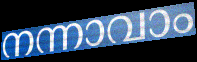
നന്നാവാം